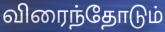
விரைந்தோடும்